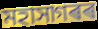
মহাসাগৰৰ